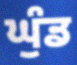
ਘੁੰਡ